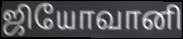
ஜியோவானி